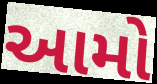
આમો